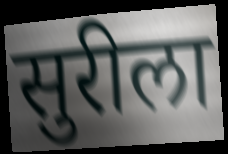
सुरीला